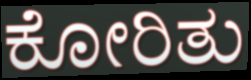
ಕೋರಿತು